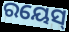
ରୟେସ୍